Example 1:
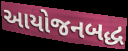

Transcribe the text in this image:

આયોજનબદ્ધ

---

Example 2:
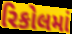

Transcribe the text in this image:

રિકોલમાં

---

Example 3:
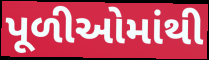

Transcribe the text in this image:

પૂળીઓમાંથી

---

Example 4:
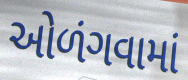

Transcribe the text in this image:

ઓળંગવામાં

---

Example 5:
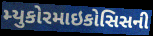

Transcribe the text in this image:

મ્યુકોરમાઇકોસિસની